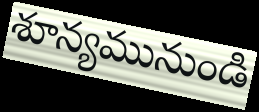
శూన్యమునుండి